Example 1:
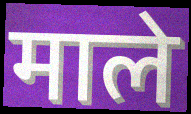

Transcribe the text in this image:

माले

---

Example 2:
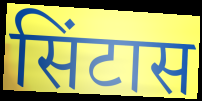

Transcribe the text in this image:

सिंटास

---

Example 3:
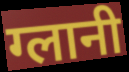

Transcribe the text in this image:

ग्लानी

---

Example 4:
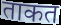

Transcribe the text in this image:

ताकत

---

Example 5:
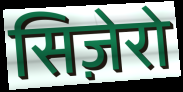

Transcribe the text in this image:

सिज़ेरो